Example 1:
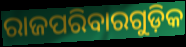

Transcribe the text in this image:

ରାଜପରିବାରଗୁଡ଼ିକ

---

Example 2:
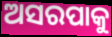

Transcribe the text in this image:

ଅସରପାକୁ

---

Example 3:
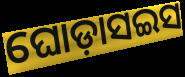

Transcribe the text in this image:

ଘୋଡ଼ାସଇସ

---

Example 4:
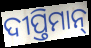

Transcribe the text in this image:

ଦୀପ୍ତିମାନ୍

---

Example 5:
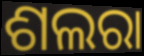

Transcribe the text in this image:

ଶଲରା